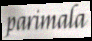
parimala